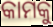
କାମକୁ